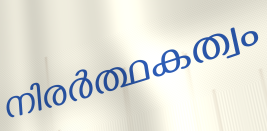
നിരർത്ഥകത്വം